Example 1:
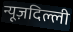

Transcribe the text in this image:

न्यूज़दिल्ली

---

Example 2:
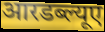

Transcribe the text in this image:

आरडब्ल्यूए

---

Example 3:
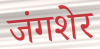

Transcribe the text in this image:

जंगशेर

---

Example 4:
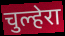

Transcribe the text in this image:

चुल्हेरा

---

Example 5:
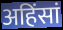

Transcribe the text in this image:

अहिंसां